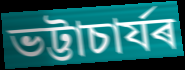
ভট্টাচাৰ্যৰ